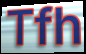
Tfh